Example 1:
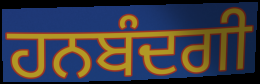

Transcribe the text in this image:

ਹਨਬੰਦਗੀ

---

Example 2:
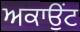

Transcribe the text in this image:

ਅਕਾਉਂਟ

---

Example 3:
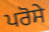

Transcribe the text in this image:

ਪਰੋਸੇ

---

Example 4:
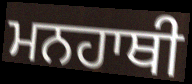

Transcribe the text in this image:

ਮਨਹਾਥੀ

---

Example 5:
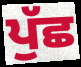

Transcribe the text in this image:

ਪੁੱਛ